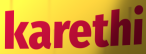
karethi